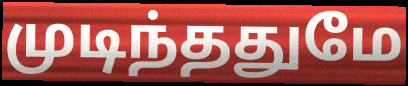
முடிந்ததுமே